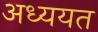
अध्ययत